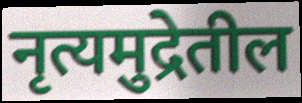
नृत्यमुद्रेतील